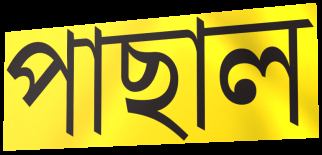
পাছাল